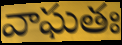
వాఘతః